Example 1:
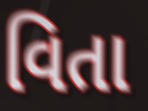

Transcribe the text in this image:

વિતા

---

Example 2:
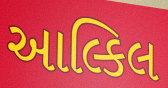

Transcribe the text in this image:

આલ્કિલ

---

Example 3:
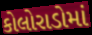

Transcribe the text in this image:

કોલોરાડોમાં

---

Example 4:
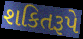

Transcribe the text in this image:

શકિતરૂપે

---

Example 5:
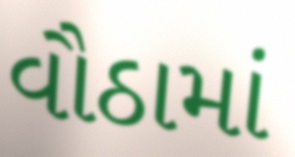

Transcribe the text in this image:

વૌઠામાં